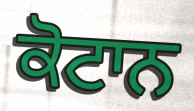
ਕੋਟਾਨ